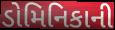
ડોમિનિકાની